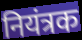
नियंत्रक